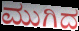
ಮುಗಿದ